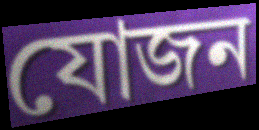
যোজন